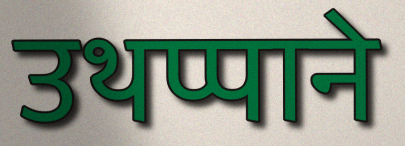
उथप्पाने